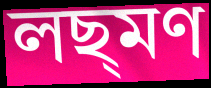
লছ্মণ